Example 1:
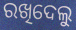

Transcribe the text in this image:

ରଖିଦେଲୁ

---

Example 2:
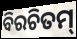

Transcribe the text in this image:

ବିରଚିତମ୍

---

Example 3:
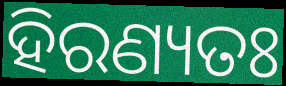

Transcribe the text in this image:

ହିରଣ୍ୟତଃ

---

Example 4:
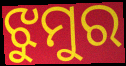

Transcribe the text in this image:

ଝୁମୁର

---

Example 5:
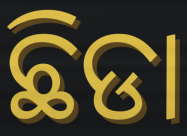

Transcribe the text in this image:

ଛିଡା